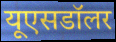
यूएसडॉलर